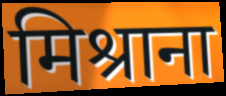
मिश्राना